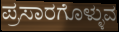
ಪ್ರಸಾರಗೊಳ್ಳುವ